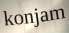
konjam